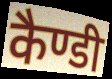
कैण्डी